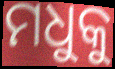
ମଧୁକୁ